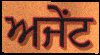
ਅਜੇਂਟ